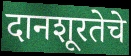
दानशूरतेचे